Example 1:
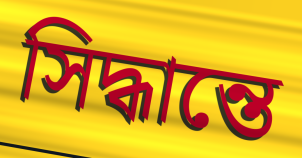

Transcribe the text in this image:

সিদ্ধান্তে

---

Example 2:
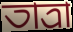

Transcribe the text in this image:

তাত্রা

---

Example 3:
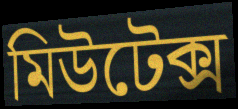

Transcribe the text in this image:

মিউটেক্স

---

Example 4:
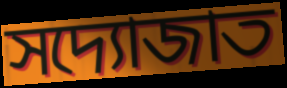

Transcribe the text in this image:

সদ্যোজাত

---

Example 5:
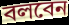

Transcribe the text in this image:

বলবেন